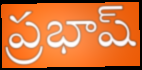
ప్రభాష్